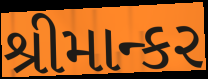
શ્રીમાન્કર